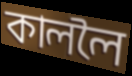
কাললৈ